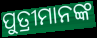
ପୁତ୍ରୀମାନଙ୍କ